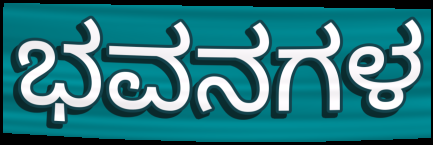
ಭವನಗಳ